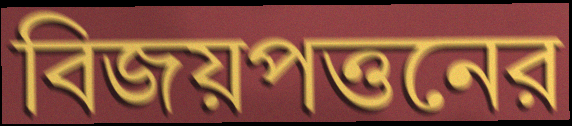
বিজয়পত্তনের